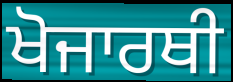
ਖੋਜਾਰਥੀ